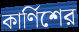
কার্ণিশের